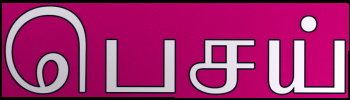
பெசய்